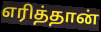
எரித்தான்